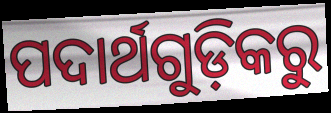
ପଦାର୍ଥଗୁଡ଼ିକରୁ